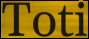
Toti